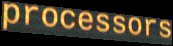
processors